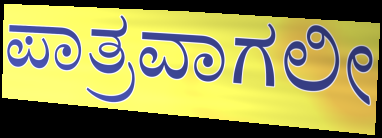
ಪಾತ್ರವಾಗಲೀ